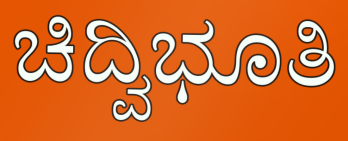
ಚಿದ್ವಿಭೂತಿ